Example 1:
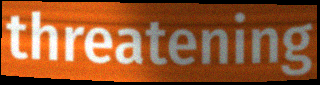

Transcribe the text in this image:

threatening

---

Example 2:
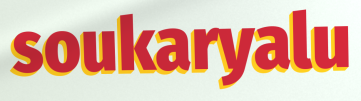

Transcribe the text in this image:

soukaryalu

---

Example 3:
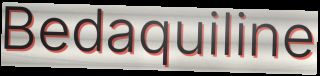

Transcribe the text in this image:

Bedaquiline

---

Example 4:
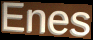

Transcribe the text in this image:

Enes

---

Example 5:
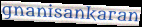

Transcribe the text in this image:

gnanisankaran